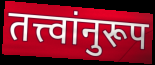
तत्त्वांनुरूप